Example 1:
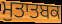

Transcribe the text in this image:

ਮੁਤਾਤਬਕ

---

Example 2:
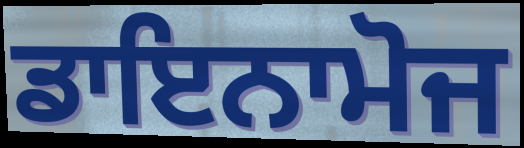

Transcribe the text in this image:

ਡਾਇਨਾਮੋਜ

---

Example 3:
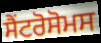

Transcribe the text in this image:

ਸੈਂਟਰੋਸੋਮਸ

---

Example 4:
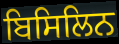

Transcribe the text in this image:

ਬਿਸਿਲਿਨ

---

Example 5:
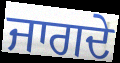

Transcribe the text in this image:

ਜਾਗਦੇ